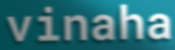
vinaha